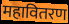
महावितरण